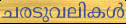
ചരടുവലികൾ